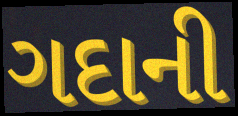
ગદાની